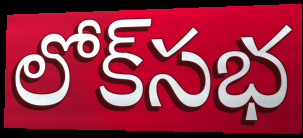
లోక్‌సభ